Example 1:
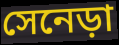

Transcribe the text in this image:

সেনেড়া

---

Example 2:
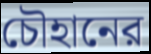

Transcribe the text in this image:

চৌহানের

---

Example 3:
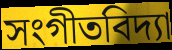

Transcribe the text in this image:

সংগীতবিদ্যা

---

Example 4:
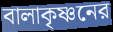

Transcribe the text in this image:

বালাকৃষ্ণনের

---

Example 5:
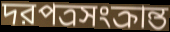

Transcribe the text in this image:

দরপত্রসংক্রান্ত